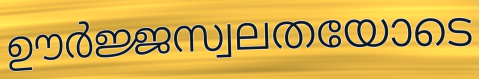
ഊർജ്ജസ്വലതയോടെ